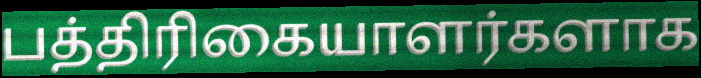
பத்திரிகையாளர்களாக